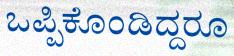
ಒಪ್ಪಿಕೊಂಡಿದ್ದರೂ